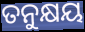
ତନୁକ୍ଷୟ